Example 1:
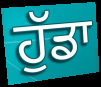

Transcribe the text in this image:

ਹੁੱਡਾ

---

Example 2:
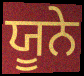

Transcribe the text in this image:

ਯੂਨੇ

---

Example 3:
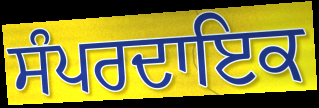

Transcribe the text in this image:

ਸੰਪਰਦਾਇਕ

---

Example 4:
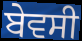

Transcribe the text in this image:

ਬੇਵਸੀ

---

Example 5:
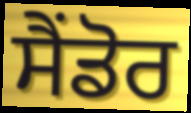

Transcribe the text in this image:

ਸੈਂਡੋਰ